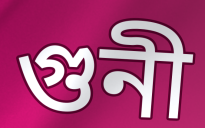
গুনী